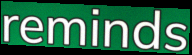
reminds